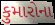
કુમારોના